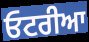
ਓਟਰੀਆ